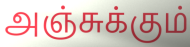
அஞ்சுக்கும்